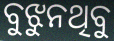
ବୁଝୁନଥିବୁ